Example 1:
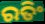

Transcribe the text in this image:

ରତିଂ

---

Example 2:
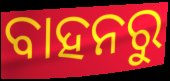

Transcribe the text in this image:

ବାହନରୁ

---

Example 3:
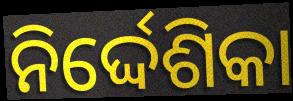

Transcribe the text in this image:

ନିର୍ଦ୍ଦେଶିକା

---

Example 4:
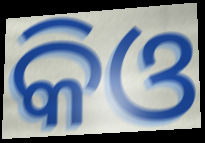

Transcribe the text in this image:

କିଓ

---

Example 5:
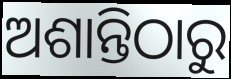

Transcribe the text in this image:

ଅଶାନ୍ତିଠାରୁ